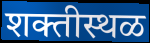
शक्तीस्थळ